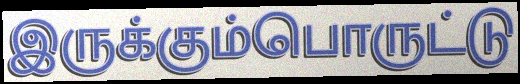
இருக்கும்பொருட்டு